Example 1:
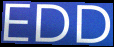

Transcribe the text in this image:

EDD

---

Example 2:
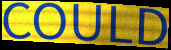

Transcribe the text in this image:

COULD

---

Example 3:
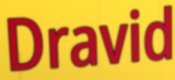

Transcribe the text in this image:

Dravid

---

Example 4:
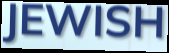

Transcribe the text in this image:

JEWISH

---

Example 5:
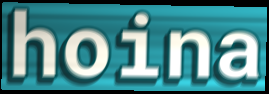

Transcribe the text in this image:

hoina